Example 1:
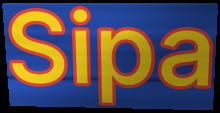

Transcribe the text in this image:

Sipa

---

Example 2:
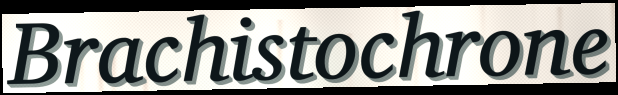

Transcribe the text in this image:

Brachistochrone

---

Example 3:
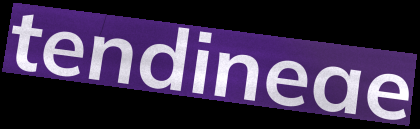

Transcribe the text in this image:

tendineae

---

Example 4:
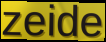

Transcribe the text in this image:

zeide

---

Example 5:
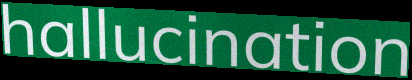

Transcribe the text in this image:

hallucination